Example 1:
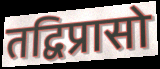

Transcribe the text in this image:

तद्विप्रासो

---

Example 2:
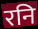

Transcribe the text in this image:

रनि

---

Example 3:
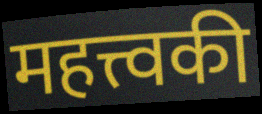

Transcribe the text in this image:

महत्त्वकी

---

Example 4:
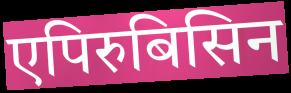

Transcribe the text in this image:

एपिरुबिसिन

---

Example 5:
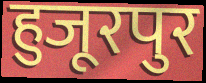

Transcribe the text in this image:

हुजूरपुर